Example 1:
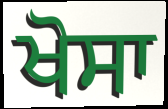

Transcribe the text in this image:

ਖੋਸਾ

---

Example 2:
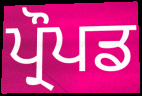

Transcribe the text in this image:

ਪ੍ਰੌਪਡ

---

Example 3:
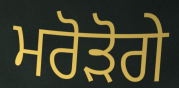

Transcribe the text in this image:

ਮਰੋੜੋਗੇ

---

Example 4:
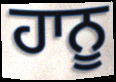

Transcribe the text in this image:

ਹਾਨੂ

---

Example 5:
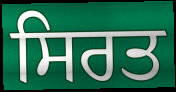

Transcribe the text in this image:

ਸਿਰਤ